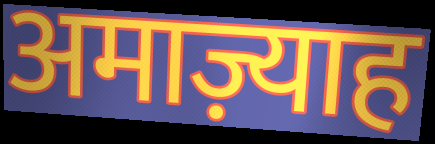
अमाज़्याह